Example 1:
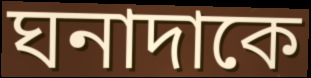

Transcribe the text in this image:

ঘনাদাকে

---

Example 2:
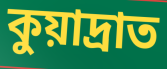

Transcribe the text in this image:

কুয়াদ্রাত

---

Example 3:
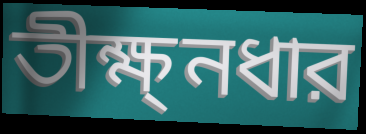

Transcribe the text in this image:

তীক্ষ্নধার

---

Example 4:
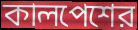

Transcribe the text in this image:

কালপেশের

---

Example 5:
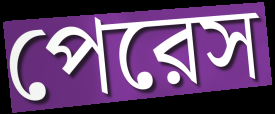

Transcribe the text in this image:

পেরেস